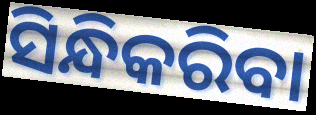
ସିନ୍ଧିକରିବା